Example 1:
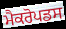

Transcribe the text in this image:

ਮੈਕਰੋਪਡਸ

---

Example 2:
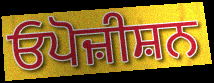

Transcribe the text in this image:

ਓਪੋਜ਼ੀਸ਼ਨ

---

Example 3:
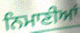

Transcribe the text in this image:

ਨਿਮਾਣੀਆਂ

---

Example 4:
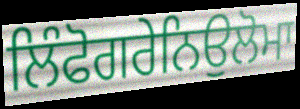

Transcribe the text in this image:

ਲਿੰਫੋਗਰੇਨਿਉਲੋਮਾ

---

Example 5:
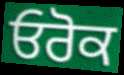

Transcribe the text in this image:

ਓਰੋਕ